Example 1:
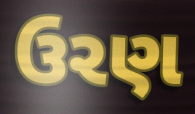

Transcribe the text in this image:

ઉરણ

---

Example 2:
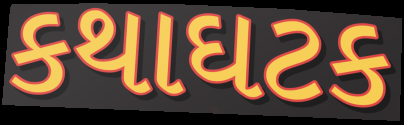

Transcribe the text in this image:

કથાઘટક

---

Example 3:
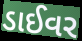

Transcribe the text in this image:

ડાઈવર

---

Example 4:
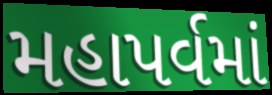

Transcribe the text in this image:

મહાપર્વમાં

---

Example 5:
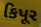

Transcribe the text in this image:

કિપૂર